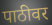
पाठीवर